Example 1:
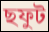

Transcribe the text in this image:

ছফুট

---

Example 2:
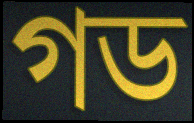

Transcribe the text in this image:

গড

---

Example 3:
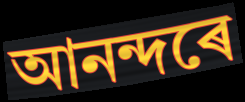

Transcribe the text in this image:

আনন্দৰে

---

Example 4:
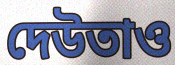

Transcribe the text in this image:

দেউতাও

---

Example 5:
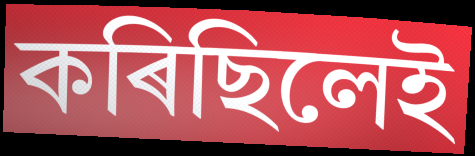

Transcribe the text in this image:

কৰিছিলেই